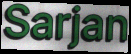
Sarjan